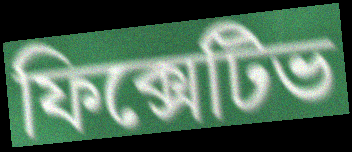
ফিক্সেটিভ